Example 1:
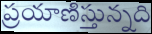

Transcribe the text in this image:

ప్రయాణిస్తున్నది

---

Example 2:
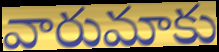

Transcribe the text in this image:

వారుమాకు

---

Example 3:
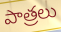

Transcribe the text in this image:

పాత్రలు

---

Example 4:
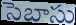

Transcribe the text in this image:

సెబాసు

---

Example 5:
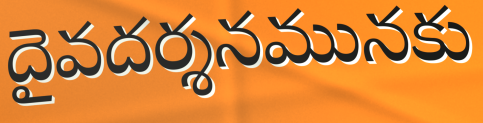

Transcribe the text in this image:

దైవదర్శనమునకు